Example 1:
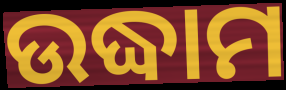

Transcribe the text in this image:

ଉଦ୍ଧାମ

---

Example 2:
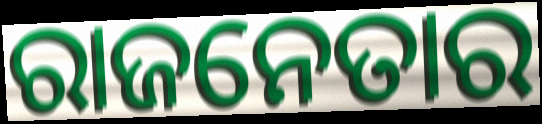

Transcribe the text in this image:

ରାଜନେତାର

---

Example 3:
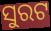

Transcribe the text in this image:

ସୁରଟ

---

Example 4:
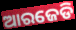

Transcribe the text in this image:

ଆରଜେଡି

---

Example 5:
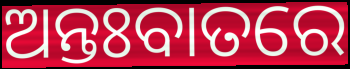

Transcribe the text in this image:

ଅନ୍ତଃବାତରେ